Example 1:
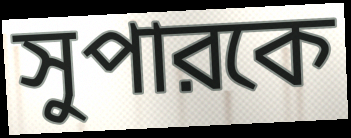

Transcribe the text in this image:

সুপারকে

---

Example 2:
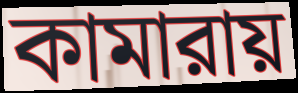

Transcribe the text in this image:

কামারায়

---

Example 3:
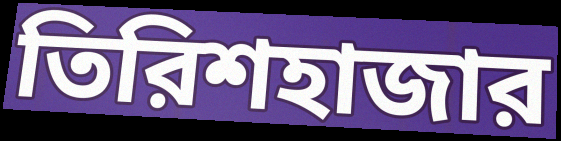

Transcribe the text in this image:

তিরিশহাজার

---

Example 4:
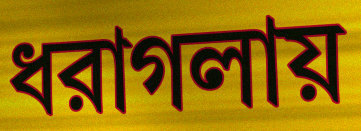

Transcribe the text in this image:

ধরাগলায়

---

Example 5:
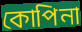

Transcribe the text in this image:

কোপিনা